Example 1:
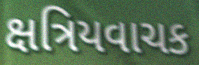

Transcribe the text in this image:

ક્ષત્રિયવાચક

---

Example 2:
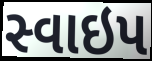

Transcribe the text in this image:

સ્વાઇપ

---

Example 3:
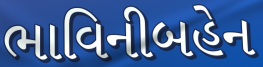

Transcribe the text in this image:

ભાવિનીબહેન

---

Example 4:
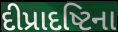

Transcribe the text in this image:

દીપ્રાદષ્ટિના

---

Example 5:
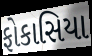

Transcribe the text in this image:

ફોકાસિયા